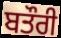
ਬਤੌਰੀ